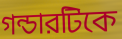
গন্ডারটিকে